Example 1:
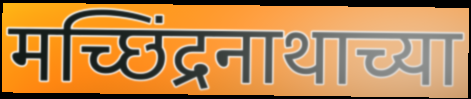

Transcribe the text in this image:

मच्छिंद्रनाथाच्या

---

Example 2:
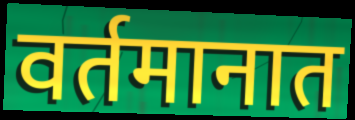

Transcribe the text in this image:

वर्तमानात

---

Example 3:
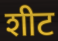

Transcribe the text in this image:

शीट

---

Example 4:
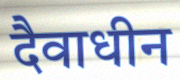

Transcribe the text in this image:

दैवाधीन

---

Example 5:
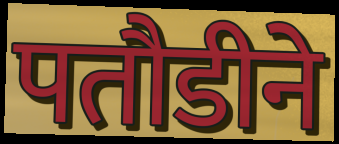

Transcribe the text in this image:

पतौडीने